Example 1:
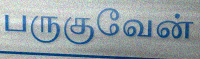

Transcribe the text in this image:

பருகுவேன்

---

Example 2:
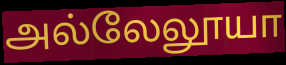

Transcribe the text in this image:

அல்லேலூயா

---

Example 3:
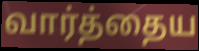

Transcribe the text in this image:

வார்த்தைய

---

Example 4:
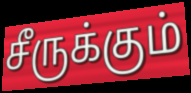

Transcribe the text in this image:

சீருக்கும்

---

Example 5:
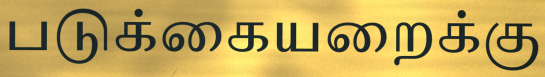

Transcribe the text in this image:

படுக்கையறைக்கு